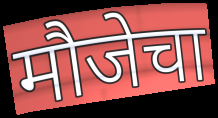
मौजेचा